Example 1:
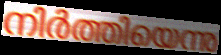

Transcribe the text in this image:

നിർത്തിയെന്നു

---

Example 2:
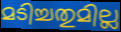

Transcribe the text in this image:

മടിച്ചതുമില്ല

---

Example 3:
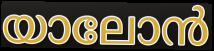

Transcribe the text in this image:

യാലോൻ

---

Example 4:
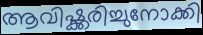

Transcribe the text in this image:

ആവിഷ്ക്കരിച്ചുനോക്കി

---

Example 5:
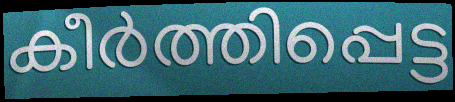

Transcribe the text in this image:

കീർത്തിപ്പെട്ട